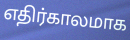
எதிர்காலமாக